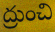
ద్రుంచి